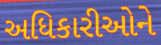
અધિકારીઓને